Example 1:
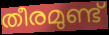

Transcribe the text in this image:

തീരമുണ്ട്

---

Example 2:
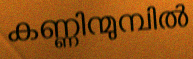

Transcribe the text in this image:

കണ്ണിന്മുമ്പിൽ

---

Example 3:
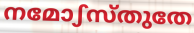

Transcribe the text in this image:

നമോഽസ്തുതേ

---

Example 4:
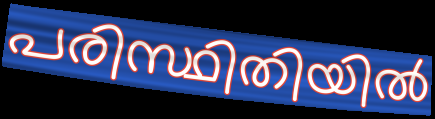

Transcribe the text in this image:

പരിസ്ഥിതിയിൽ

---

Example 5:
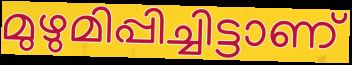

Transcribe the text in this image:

മുഴുമിപ്പിച്ചിട്ടാണ്